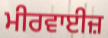
ਮੀਰਵਾਈਜ਼